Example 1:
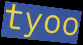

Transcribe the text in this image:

tyoo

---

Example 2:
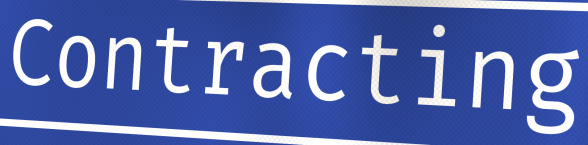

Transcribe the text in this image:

Contracting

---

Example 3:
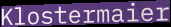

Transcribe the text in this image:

Klostermaier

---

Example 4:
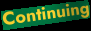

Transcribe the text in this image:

Continuing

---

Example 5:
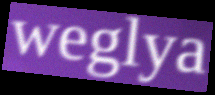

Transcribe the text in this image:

weglya